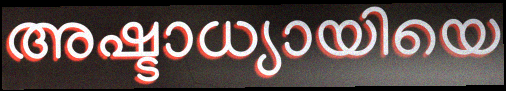
അഷ്ടാധ്യായിയെ